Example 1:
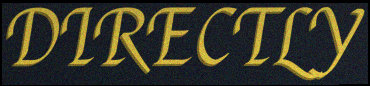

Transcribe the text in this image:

DIRECTLY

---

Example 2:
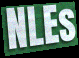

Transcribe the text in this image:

NLEs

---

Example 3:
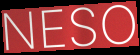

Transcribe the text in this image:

NESO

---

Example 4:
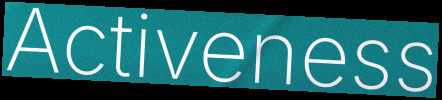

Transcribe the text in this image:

Activeness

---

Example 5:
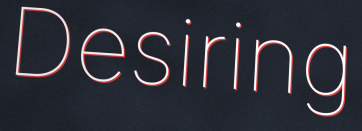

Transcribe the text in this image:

Desiring